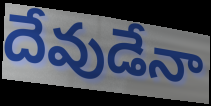
దేవుడేనా